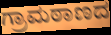
ಗ್ರಾಮಠಾಣದ